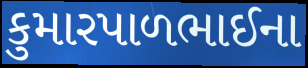
કુમારપાળભાઈના